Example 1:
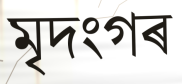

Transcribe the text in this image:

মৃদংগৰ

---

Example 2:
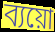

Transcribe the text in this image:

ব্যয়ো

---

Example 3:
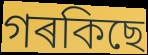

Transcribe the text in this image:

গৰকিছে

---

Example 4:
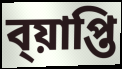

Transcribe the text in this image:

ব্য়াপ্তি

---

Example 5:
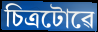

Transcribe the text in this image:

চিত্ৰটোৱে